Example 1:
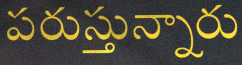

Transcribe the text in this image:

పరుస్తున్నారు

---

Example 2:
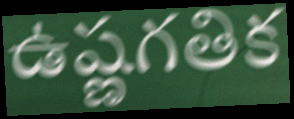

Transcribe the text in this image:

ఉష్ణగతిక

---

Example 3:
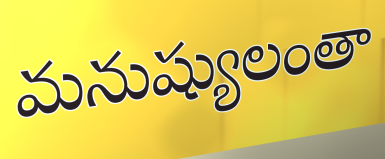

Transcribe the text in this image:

మనుష్యులంతా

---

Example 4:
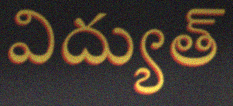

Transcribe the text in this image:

విద్యుత్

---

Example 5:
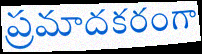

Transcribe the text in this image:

ప్రమాదకరంగా